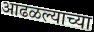
आढळल्याच्या